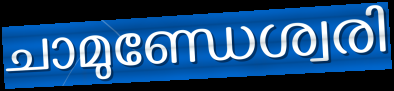
ചാമുണ്ഡേശ്വരി